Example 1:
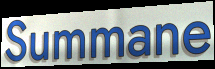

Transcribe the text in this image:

Summane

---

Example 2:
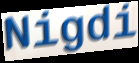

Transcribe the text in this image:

Nigdi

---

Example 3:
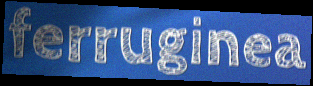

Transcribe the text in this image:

ferruginea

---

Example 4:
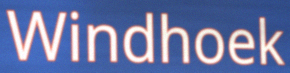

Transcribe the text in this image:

Windhoek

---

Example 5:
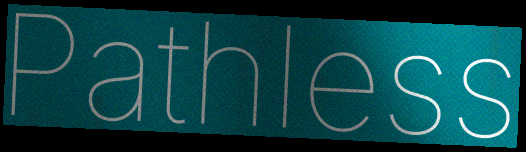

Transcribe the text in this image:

Pathless